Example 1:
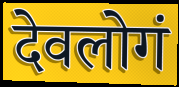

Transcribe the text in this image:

देवलोगं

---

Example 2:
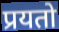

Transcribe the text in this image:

प्रयतो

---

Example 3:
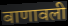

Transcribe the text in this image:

बाणावली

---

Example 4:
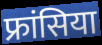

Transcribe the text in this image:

फ्रांसिया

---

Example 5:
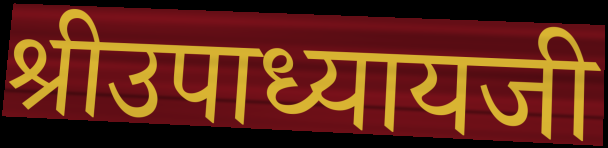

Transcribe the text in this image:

श्रीउपाध्यायजी